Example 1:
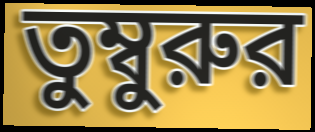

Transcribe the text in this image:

তুম্বুরুর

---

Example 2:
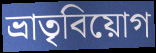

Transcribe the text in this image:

ভ্রাতৃবিয়োগ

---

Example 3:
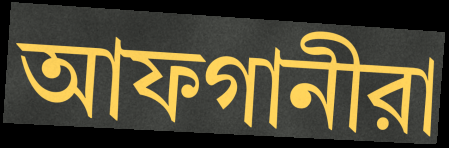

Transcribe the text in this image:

আফগানীরা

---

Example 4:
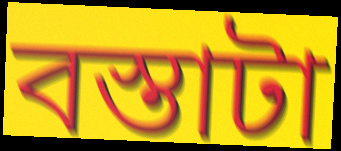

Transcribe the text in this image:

বস্তাটা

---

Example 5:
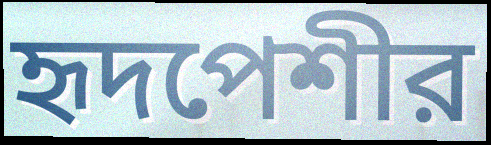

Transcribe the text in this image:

হৃদপেশীর